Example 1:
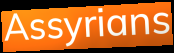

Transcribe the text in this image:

Assyrians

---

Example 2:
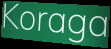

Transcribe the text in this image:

Koraga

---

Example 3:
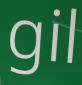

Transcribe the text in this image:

gil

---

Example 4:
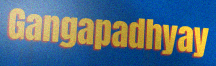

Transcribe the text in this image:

Gangapadhyay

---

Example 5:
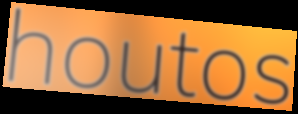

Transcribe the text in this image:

houtos